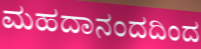
ಮಹದಾನಂದದಿಂದ